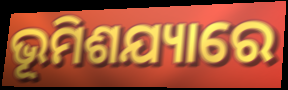
ଭୂମିଶଯ୍ୟାରେ